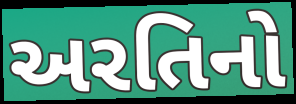
અરતિનો